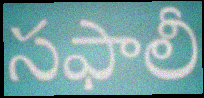
సఫాలీ